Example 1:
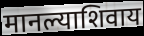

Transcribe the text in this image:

मानल्याशिवाय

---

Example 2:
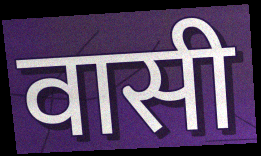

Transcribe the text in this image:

वासी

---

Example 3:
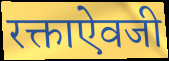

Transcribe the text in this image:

रक्ताऐवजी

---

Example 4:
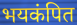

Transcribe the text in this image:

भयकंपित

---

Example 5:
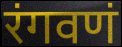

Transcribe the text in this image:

रंगवणं